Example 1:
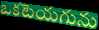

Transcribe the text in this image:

ఒకటెయగును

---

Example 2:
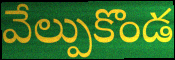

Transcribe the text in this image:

వేల్పుకొండ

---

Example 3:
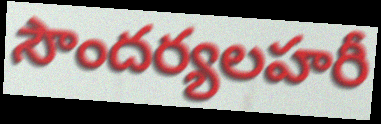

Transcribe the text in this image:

సౌందర్యలహరీ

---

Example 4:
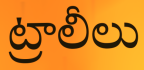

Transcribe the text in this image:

ట్రాలీలు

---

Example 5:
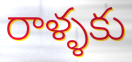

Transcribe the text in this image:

రాళ్ళకు